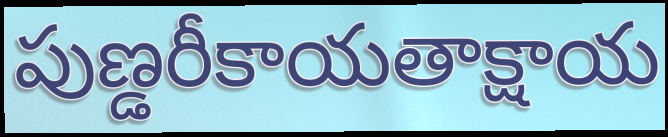
పుణ్డరీకాయతాక్షాయ